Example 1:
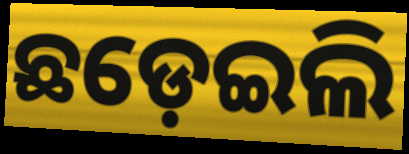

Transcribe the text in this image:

ଛଡ଼େଇଲି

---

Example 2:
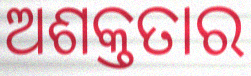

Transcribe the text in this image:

ଅଶକ୍ତତାର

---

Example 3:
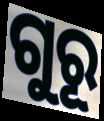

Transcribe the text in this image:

ଗୁରୂ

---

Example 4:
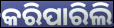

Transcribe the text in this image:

କରିପାରିଲି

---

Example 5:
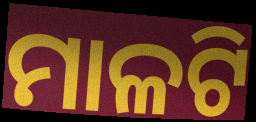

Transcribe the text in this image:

ମାଳଟି